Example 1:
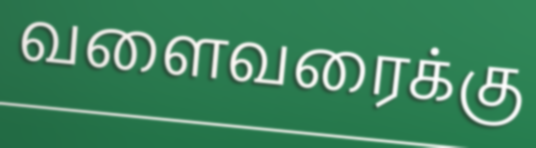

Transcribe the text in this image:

வளைவரைக்கு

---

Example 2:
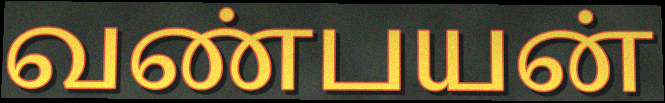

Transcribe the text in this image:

வண்பயன்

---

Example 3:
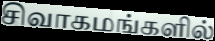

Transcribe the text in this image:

சிவாகமங்களில்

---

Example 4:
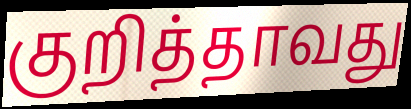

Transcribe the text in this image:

குறித்தாவது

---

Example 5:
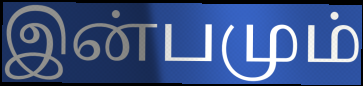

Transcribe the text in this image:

இன்பமும்